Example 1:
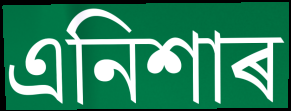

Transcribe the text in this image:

এনিশাৰ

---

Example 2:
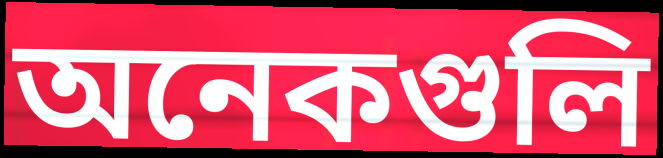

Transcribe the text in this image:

অনেকগুলি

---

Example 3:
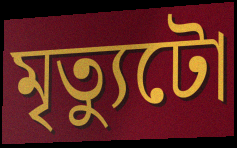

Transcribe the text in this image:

মৃত্যুটো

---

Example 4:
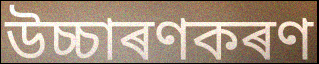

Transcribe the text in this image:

উচ্চাৰণকৰণ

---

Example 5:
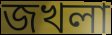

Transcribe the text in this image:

জখলা